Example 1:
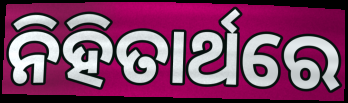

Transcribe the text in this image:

ନିହିତାର୍ଥରେ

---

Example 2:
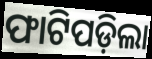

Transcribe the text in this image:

ଫାଟିପଡ଼ିଲା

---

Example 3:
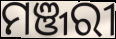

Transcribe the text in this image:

ମଞ୍ଜରୀ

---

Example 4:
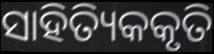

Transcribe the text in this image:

ସାହିତ୍ୟିକକୃତି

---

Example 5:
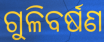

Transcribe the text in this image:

ଗୁଳିବର୍ଷଣ